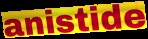
anistide